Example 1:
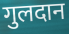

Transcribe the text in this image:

गुलदान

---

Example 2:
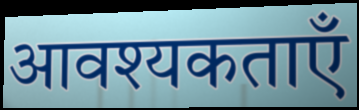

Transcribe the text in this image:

आवश्यकताएँ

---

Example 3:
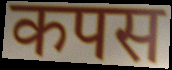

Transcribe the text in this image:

कपस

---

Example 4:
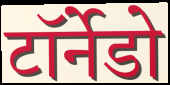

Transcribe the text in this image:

टॉर्नेडो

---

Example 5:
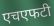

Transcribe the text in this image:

एचएफटी